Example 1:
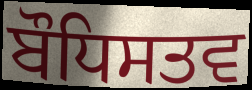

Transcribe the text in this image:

ਬੌਧਿਸਤਵ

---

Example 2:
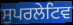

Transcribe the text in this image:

ਸੁਪਰਲੇਟਿਵ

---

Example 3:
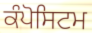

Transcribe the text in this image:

ਕੰਪੋਸਿਟਮ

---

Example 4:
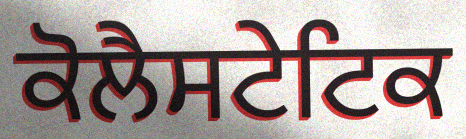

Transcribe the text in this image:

ਕੋਲੈਸਟੇਟਿਕ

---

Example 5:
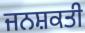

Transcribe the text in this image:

ਜਨਸ਼ਕਤੀ